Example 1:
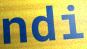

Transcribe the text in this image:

ndi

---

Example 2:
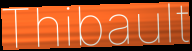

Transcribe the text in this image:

Thibault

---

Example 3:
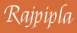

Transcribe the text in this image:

Rajpipla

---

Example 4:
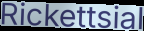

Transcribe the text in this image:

Rickettsial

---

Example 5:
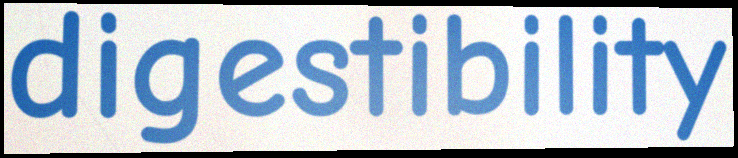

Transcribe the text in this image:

digestibility